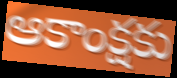
ఆకాంక్షకు